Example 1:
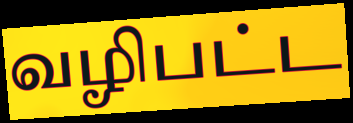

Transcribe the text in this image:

வழிபட்ட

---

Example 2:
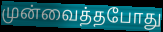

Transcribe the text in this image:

முன்வைத்தபோது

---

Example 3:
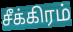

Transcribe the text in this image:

சீக்கிரம்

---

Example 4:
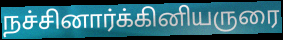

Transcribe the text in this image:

நச்சினார்க்கினியருரை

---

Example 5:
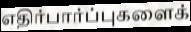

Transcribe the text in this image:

எதிர்பார்ப்புகளைக்